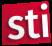
sti